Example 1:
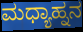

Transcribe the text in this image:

ಮಧ್ಯಾಹ್ನನ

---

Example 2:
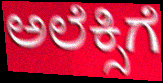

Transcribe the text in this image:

ಅಲೆಕ್ಸಿಗೆ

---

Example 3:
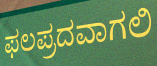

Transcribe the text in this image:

ಫಲಪ್ರದವಾಗಲಿ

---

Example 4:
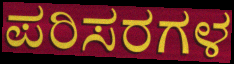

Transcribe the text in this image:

ಪರಿಸರಗಳ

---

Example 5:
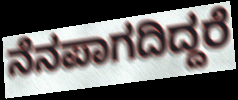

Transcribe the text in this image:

ನೆನಪಾಗದಿದ್ದರೆ